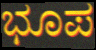
ಭೂಪ